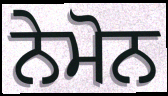
ਨੇਮੋਨ